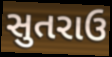
સુતરાઉ